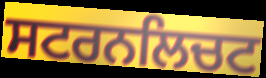
ਸਟਰਨਲਿਚਟ